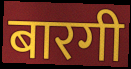
बारगी